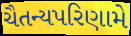
ચૈતન્યપરિણામે